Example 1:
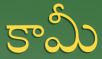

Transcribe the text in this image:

కామీ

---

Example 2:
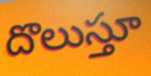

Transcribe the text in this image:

దొలుస్తూ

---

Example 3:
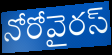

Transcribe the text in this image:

నోరోవైరస్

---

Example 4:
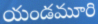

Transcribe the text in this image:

యండమూరి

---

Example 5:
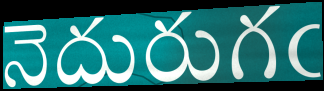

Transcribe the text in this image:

నెదురుగఁ